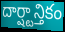
దార్ష్టాన్తికం